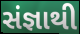
સંજ્ઞાથી